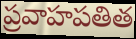
ప్రవాహపతిత